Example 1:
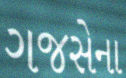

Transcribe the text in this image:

ગજસેના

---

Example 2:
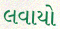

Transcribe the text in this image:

લવાયો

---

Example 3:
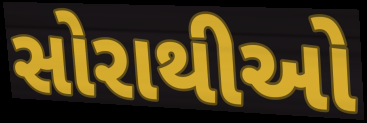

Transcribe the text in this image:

સોરાથીઓ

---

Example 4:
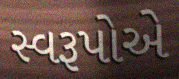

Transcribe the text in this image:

સ્વરૂપોએ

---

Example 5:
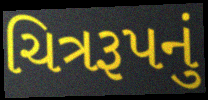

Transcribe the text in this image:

ચિત્રરૂપનું